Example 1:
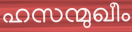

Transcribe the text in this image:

ഹസന്മുഖീം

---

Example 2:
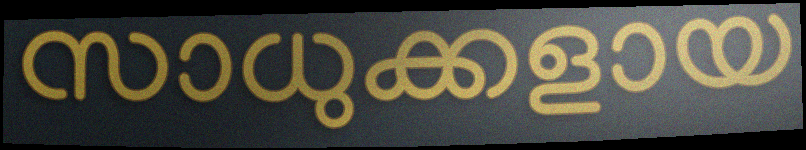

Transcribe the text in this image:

സാധുക്കളായ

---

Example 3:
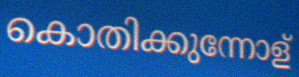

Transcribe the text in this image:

കൊതിക്കുന്നോള്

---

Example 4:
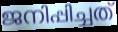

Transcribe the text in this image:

ജനിപ്പിച്ചത്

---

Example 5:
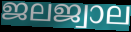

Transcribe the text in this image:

ജലജ്വാല